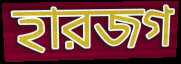
হারজগ